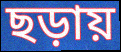
ছড়ায়